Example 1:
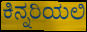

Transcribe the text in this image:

ಕಿನ್ನರಿಯಲಿ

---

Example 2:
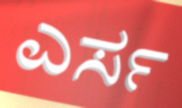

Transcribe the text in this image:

ಎರ್ಸ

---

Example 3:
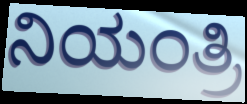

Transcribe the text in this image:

ನಿಯಂತ್ರಿ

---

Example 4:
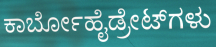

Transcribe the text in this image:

ಕಾರ್ಬೋಹೈಡ್ರೇಟ್‌ಗಳು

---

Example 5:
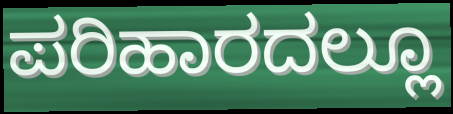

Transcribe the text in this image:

ಪರಿಹಾರದಲ್ಲೂ